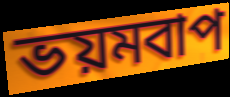
ভয়মবাপ